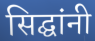
सिद्घांनी